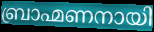
ബ്രാഹ്മണനായി